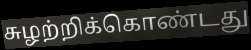
சுழற்றிக்கொண்டது